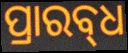
ପ୍ରାରବ୍‍ଧ